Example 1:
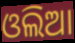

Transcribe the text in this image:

ଓଲିଆ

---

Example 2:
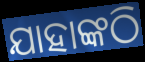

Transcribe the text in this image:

ଯାହାଙ୍କଠି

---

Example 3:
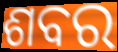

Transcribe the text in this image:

ଶବର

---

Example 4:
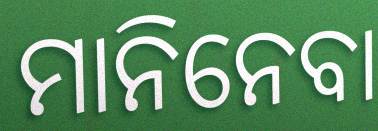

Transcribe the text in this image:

ମାନିନେବା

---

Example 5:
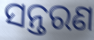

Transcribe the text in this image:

ସନ୍ତରଣ